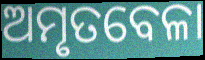
ଅମୃତବେଳା